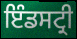
ਇੰਡਸਟ੍ਰੀ